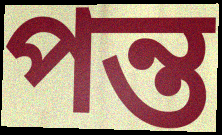
পন্ত